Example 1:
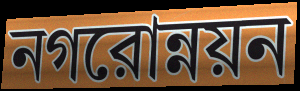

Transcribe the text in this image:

নগরোন্নয়ন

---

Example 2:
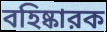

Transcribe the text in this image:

বহিষ্কারক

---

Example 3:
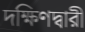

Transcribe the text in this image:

দক্ষিণদ্বারী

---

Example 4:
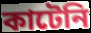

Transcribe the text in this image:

কাটেনি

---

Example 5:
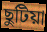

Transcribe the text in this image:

ছুটিয়া